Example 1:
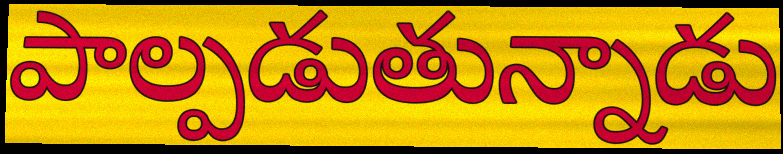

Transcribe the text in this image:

పాల్పడుతున్నాడు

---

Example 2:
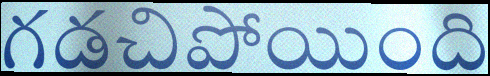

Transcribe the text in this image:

గడచిపోయింది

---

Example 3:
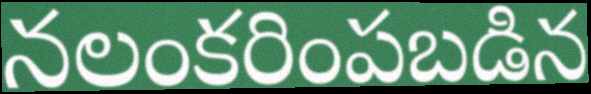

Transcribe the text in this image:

నలంకరింపబడిన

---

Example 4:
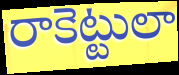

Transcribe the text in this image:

రాకెట్టులా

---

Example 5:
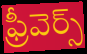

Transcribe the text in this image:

ఫ్రీవెర్స్